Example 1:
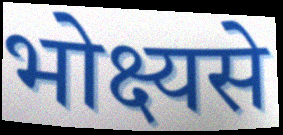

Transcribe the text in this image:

भोक्ष्यसे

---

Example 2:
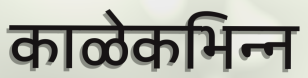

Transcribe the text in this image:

काळेकभिन्न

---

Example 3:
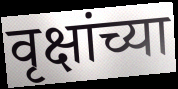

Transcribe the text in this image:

वृक्षांच्या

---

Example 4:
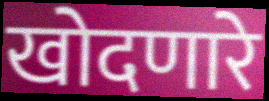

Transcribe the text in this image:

खोदणारे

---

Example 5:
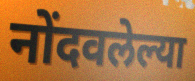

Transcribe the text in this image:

नोंदवलेल्या